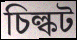
চিল্কট